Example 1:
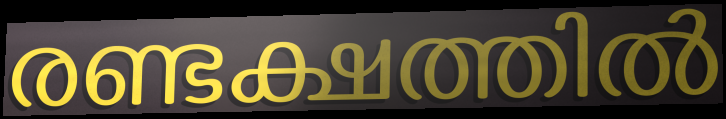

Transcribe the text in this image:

രണ്ടക്ഷത്തിൽ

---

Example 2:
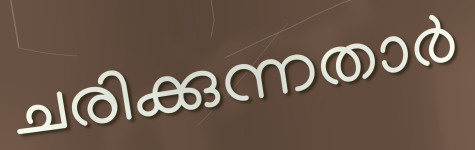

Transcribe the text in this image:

ചരിക്കുന്നതാർ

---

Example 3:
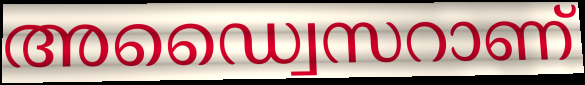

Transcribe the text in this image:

അഡ്വൈസറാണ്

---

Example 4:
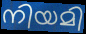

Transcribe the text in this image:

നിയമി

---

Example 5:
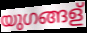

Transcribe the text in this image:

യുഗങ്ങള്